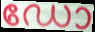
ഡോ